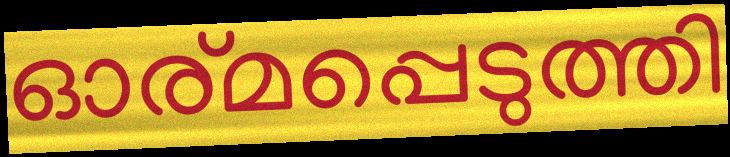
ഓര്മപ്പെടുത്തി